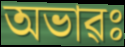
অভাৱঃ